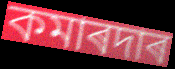
কমাৰদাৰ